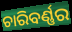
ଚାରିବର୍ଣ୍ଣର